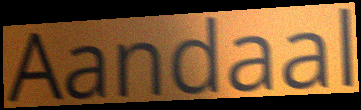
Aandaal